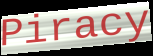
Piracy